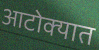
आटोक्‍यात